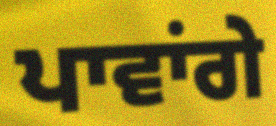
ਪਾਵਾਂਗੇ